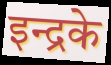
इन्द्रके